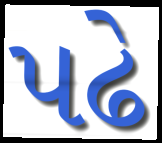
પઢે